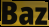
Baz